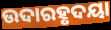
ଉଦାରହୃଦୟା